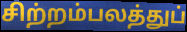
சிற்றம்பலத்துப்